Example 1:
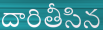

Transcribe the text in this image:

దారితీసిన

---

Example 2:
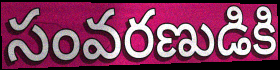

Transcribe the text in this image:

సంవరణుడికి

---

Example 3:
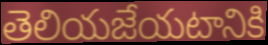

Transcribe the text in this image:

తెలియజేయటానికి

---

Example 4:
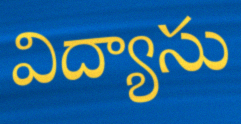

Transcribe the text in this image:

విద్యాసు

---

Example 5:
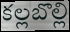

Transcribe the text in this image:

కల్లబొల్లి